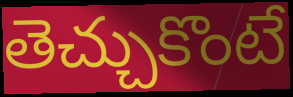
తెచ్చుకొంటే